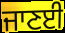
ਜਾਣਈ